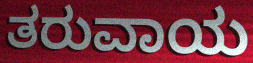
ತರುವಾಯ